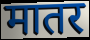
मातर